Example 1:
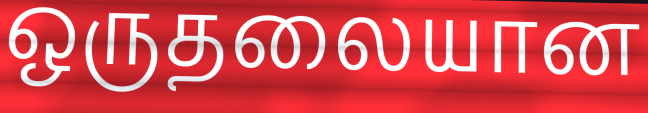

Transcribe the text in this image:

ஒருதலையான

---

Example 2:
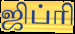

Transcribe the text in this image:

ஜிப்ரி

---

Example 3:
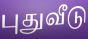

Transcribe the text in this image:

புதுவீடு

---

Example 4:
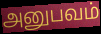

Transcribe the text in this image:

அனுபவம்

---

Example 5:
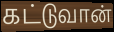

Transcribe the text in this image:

கட்டுவான்